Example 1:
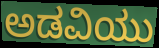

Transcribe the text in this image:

ಅಡವಿಯು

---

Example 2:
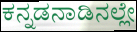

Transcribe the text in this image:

ಕನ್ನಡನಾಡಿನಲ್ಲೇ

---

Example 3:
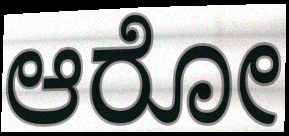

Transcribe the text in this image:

ಆರೋ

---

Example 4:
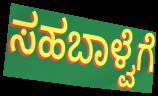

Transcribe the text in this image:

ಸಹಬಾಳ್ವೆಗೆ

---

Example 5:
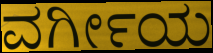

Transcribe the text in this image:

ವರ್ಗೀಯ